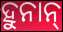
ହୁନାନ୍